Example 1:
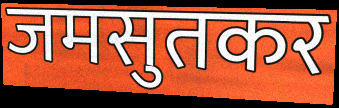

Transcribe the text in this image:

जमसुतकर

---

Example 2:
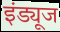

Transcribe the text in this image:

इंड्यूज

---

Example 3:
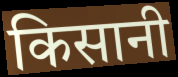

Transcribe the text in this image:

किसानी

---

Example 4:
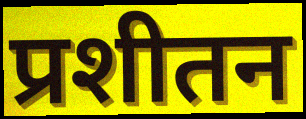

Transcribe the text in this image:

प्रशीतन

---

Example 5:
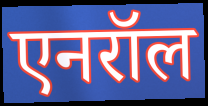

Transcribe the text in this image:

एनरॉल